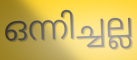
ഒന്നിച്ചല്ല